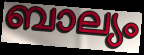
ബാല്യം